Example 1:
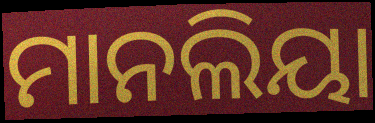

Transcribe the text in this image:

ମାନଲିୟା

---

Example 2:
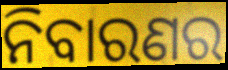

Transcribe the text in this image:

ନିବାରଣର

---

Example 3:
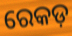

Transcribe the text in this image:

ରେକଡ଼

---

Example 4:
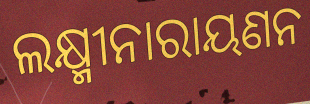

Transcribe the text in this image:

ଲକ୍ଷ୍ମୀନାରାୟଣନ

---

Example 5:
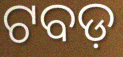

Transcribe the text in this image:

ଟବଡ଼